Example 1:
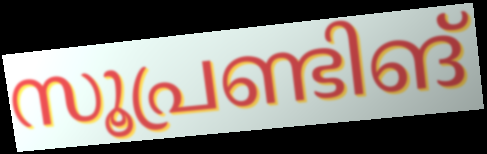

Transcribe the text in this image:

സൂപ്രണ്ടിങ്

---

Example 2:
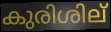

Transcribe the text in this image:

കുരിശില്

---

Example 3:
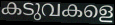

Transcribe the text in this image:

കടുവകളെ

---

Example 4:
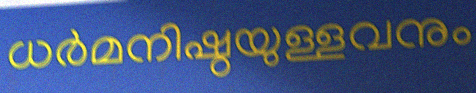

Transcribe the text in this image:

ധർമനിഷ്ഠയുള്ളവനും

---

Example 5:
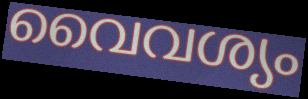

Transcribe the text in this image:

വൈവശ്യം